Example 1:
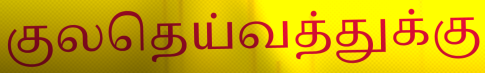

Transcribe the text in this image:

குலதெய்வத்துக்கு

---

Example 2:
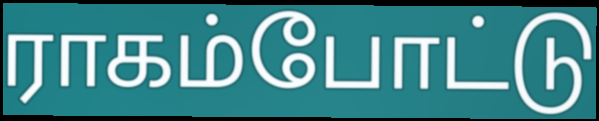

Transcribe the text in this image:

ராகம்போட்டு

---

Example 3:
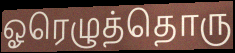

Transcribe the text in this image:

ஓரெழுத்தொரு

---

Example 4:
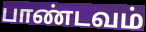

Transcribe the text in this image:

பாண்டவம்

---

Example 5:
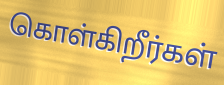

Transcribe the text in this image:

கொள்கிறீர்கள்